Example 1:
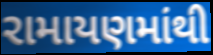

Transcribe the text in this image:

રામાયણમાંથી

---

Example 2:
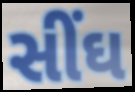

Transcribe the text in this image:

સીંઘ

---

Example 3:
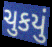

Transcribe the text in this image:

ચુકયું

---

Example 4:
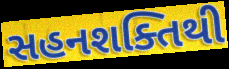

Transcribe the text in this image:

સહનશક્તિથી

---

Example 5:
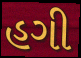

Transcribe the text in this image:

હગી